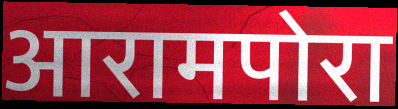
आरामपोरा